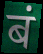
बं